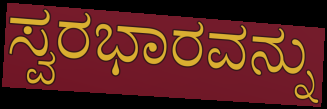
ಸ್ವರಭಾರವನ್ನು